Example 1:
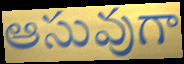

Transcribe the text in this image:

ఆసువుగా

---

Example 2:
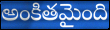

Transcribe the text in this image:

అంకితమైంది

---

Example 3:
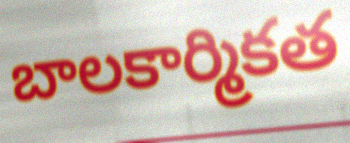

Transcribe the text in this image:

బాలకార్మికత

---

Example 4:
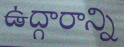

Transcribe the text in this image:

ఉద్గారాన్ని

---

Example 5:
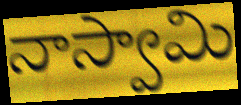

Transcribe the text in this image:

నాస్వామి